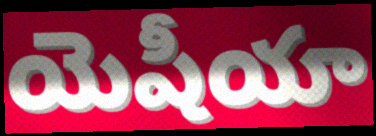
యెషీయా